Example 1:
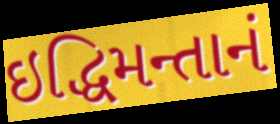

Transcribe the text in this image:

ઇદ્ધિમન્તાનં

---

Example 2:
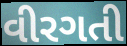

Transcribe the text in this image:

વીરગતી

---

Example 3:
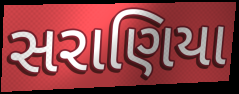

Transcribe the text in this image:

સરાણિયા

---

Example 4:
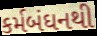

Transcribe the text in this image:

કર્મબંઘનથી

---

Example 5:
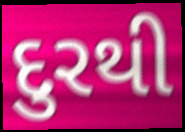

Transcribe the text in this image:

દુરથી